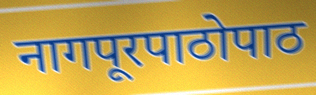
नागपूरपाठोपाठ